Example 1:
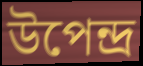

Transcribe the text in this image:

উপেন্দ্র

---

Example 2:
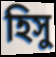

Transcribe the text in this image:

হিসু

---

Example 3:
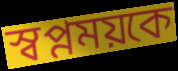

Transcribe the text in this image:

স্বপ্নময়কে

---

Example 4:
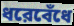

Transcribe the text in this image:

ধরেবেঁধে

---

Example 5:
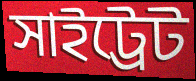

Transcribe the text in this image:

সাইট্রেট